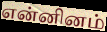
என்னினம்